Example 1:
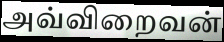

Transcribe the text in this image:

அவ்விறைவன்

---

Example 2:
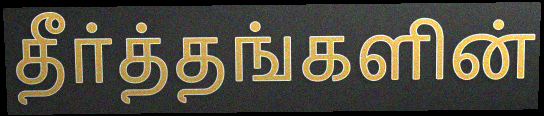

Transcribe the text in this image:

தீர்த்தங்களின்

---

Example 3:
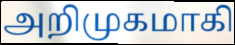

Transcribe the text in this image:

அறிமுகமாகி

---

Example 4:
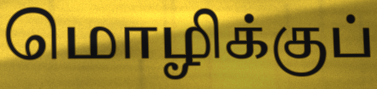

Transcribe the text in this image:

மொழிக்குப்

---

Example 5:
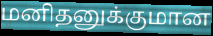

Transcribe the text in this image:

மனிதனுக்குமான